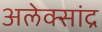
अलेक्सांद्र